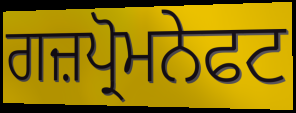
ਗਜ਼ਪ੍ਰੋਮਨੇਫਟ